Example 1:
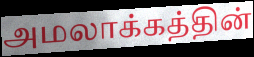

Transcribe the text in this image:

அமலாக்கத்தின்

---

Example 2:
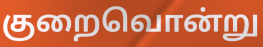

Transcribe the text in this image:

குறைவொன்று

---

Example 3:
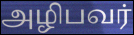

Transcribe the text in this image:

அழிபவர்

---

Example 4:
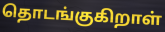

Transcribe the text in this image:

தொடங்குகிறாள்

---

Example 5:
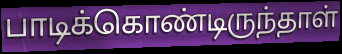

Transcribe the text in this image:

பாடிக்கொண்டிருந்தாள்